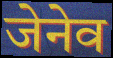
जेनेव